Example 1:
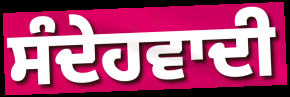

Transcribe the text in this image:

ਸੰਦੇਹਵਾਦੀ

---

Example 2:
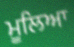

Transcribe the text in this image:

ਮੂਲਿਆ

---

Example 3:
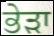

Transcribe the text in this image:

ਭੇੜਾ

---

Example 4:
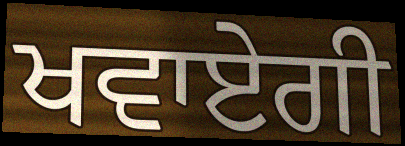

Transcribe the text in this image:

ਖਵਾਏਗੀ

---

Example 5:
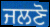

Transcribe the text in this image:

ਜਲਣੋ